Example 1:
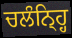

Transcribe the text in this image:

ਚਲੰਨ੍ਹ੍ਹਿ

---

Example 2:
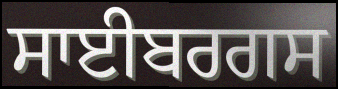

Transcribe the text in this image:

ਸਾਈਬਰਗਸ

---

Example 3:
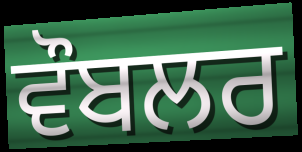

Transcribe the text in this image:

ਵੌਬਲਰ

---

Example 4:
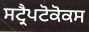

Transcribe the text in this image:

ਸਟ੍ਰੈਪਟੋਕੋਕਸ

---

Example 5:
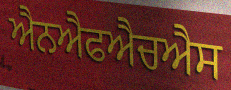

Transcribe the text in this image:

ਐਨਐਫਐਚਐਸ